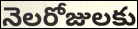
నెలరోజులకు